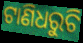
ଟାଣିଧରୁଚି